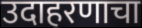
उदाहरणाचा